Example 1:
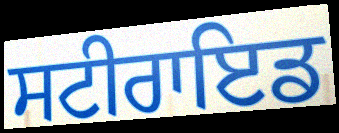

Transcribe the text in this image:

ਸਟੀਰਾਇਡ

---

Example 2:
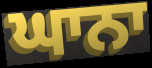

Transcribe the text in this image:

ਘਾਨਾ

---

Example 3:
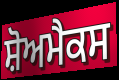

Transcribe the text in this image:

ਸ਼ੋਅਮੈਕਸ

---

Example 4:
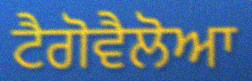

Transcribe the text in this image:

ਟੈਗੋਵੈਲੋਆ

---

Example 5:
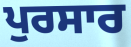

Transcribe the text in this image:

ਪੁਰਸਾਰ